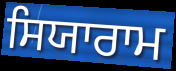
ਸਿਯਾਰਾਮ